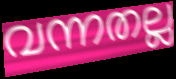
വന്നതല്ല